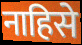
नाहिसे